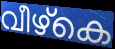
വീഴ്കെ